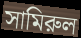
সামিরুল